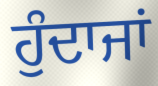
ਹੁੰਦਾਜਾਂ